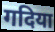
गदिया